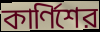
কার্ণিশের